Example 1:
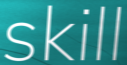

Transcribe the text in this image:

skill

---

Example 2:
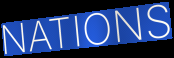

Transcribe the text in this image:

NATIONS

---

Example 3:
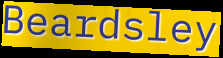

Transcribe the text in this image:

Beardsley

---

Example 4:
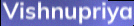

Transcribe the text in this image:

Vishnupriya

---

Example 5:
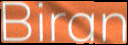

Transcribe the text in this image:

Biran